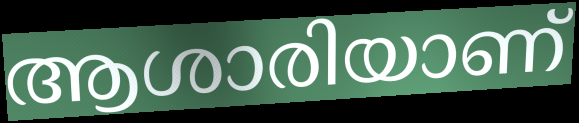
ആശാരിയാണ്